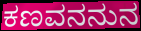
ಕಣವನನುನ